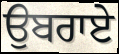
ਉਬਰਾਏ